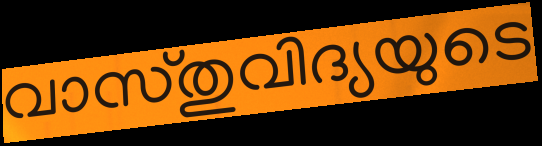
വാസ്തുവിദ്യയുടെ